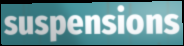
suspensions